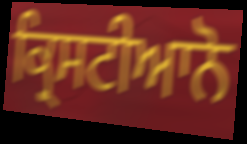
ਕ੍ਰਿਸਟੀਆਨੋ